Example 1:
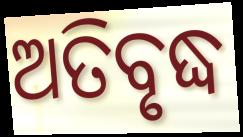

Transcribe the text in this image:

ଅତିବୃଦ୍ଧ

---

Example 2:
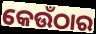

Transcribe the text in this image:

କେଉଁଠାର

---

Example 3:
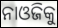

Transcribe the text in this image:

ନାଓଜିକୁ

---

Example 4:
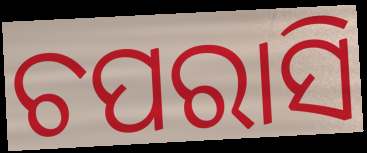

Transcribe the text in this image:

ଚପରାସି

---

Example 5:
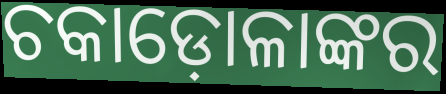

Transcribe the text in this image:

ଚକାଡ଼ୋଳାଙ୍କର